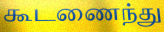
கூடணைந்து